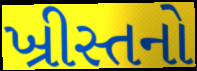
ખ્રીસ્તનો